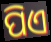
ପିଏ